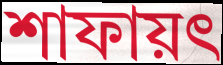
শাফায়ৎ